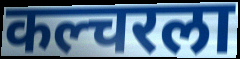
कल्चरला